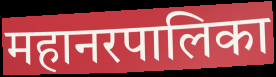
महानरपालिका